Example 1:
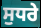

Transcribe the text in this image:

ਸੁਧਰੇ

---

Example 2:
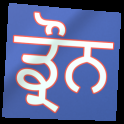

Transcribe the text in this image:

ਡ੍ਰੌਨ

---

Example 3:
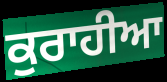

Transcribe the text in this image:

ਕੁਰਾਹੀਆ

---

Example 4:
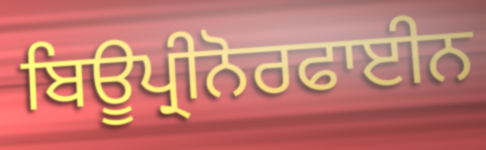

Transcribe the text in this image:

ਬਿਊਪ੍ਰੀਨੋਰਫਾਈਨ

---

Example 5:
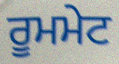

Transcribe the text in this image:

ਰੂਮਮੇਟ